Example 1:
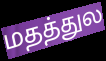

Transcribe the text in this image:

மதத்துல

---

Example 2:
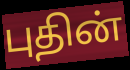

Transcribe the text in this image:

புதின்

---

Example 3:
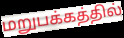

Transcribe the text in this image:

மறுபக்கத்தில்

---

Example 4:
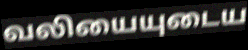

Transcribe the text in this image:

வலியையுடைய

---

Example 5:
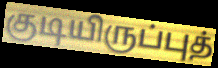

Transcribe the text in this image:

குடியிருப்புத்